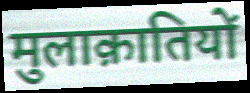
मुलाक़ातियों